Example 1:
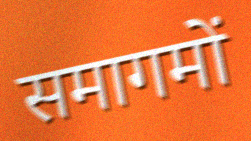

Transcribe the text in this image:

समागमों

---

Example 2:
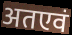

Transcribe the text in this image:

अतएवं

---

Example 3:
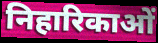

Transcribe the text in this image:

निहारिकाओं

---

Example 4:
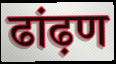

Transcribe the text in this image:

ढांढ़ण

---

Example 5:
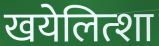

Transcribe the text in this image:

खयेलित्शा